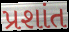
પ્રશાંત